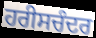
ਹਰੀਸਚੰਦਰ